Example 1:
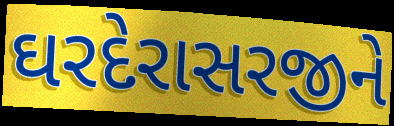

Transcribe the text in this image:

ઘરદેરાસરજીને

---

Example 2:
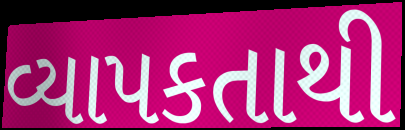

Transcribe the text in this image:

વ્યાપકતાથી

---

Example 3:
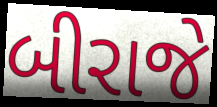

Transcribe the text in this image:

બીરાજે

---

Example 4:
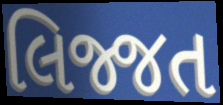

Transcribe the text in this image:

લિજ્જત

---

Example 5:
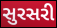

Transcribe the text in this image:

સુરસરી